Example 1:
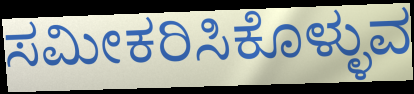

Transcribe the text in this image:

ಸಮೀಕರಿಸಿಕೊಳ್ಳುವ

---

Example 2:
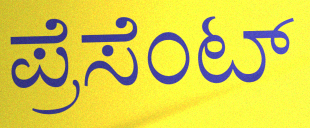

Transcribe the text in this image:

ಪ್ರೆಸೆಂಟ್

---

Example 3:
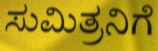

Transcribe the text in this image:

ಸುಮಿತ್ರನಿಗೆ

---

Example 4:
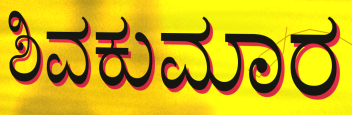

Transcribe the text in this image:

ಶಿವಕುಮಾರ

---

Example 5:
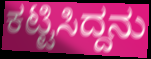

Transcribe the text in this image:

ಕಟ್ಟಿಸಿದ್ದನು